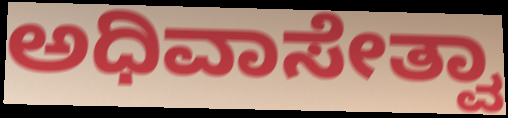
ಅಧಿವಾಸೇತ್ವಾ